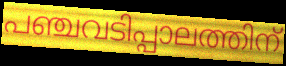
പഞ്ചവടിപ്പാലത്തിന്